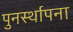
पुनर्स्थापना